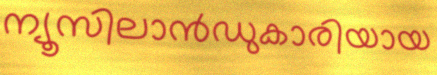
ന്യൂസിലാൻഡുകാരിയായ